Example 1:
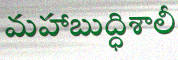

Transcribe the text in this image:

మహాబుద్ధిశాలీ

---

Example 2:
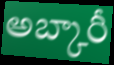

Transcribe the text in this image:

అబ్కారీ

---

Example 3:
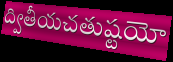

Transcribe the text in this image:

ద్వితీయచతుష్టయో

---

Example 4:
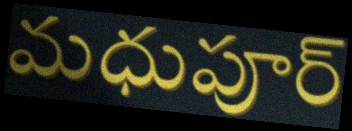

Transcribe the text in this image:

మధుపూర్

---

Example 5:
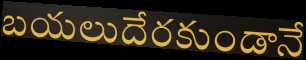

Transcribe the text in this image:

బయలుదేరకుండానే